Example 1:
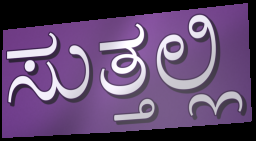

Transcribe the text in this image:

ಸುತ್ತಲ್ಲಿ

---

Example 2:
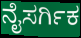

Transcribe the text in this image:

ನೈಸರ್ಗಿಕ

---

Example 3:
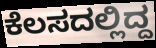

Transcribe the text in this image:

ಕೆಲಸದಲ್ಲಿದ್ದ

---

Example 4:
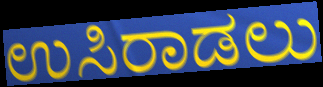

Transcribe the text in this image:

ಉಸಿರಾಡಲು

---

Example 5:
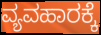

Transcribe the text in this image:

ವ್ಯವಹಾರಕ್ಕೆ